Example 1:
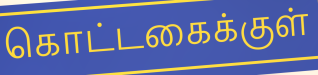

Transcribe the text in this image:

கொட்டகைக்குள்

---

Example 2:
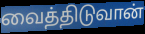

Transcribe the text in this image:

வைத்திடுவான்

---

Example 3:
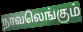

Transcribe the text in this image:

நாவலெங்கும்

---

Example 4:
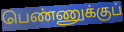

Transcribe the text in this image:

பெண்ணுக்குப்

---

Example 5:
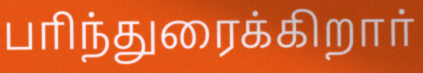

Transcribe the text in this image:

பரிந்துரைக்கிறார்